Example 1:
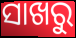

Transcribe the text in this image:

ସାଖରୁ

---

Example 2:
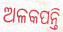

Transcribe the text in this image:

ଅଳକପନ୍ତି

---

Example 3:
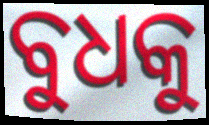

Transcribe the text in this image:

ବୁଧକୁ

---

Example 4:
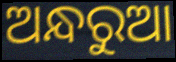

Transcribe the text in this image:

ଅନ୍ଧରୁଆ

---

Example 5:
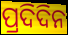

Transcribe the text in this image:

ପ୍ରଦିଦିନ